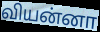
வியன்னா